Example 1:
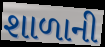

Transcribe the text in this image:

શાળાની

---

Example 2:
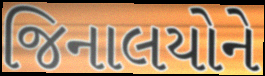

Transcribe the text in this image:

જિનાલયોને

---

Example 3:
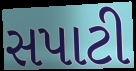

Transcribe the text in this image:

સપાટી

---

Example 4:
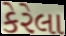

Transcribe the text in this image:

કેરેલા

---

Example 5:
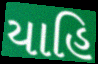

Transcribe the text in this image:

યાહિ